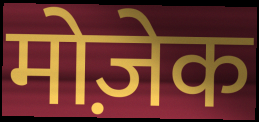
मोज़ेक